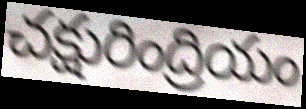
చక్షురింద్రియం